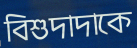
বিশুদাদাকে